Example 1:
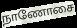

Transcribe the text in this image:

நாணோசை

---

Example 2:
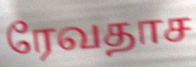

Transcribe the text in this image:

ரேவதாச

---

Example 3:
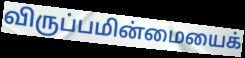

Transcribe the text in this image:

விருப்பமின்மையைக்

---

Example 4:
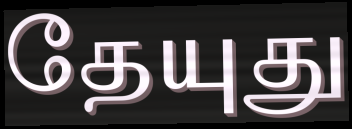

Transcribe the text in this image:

தேயுது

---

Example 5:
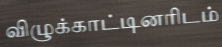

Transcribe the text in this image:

விழுக்காட்டினரிடம்